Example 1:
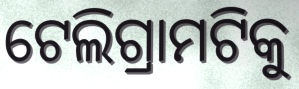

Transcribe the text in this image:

ଟେଲିଗ୍ରାମଟିକୁ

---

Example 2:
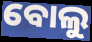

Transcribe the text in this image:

ବୋଲୁ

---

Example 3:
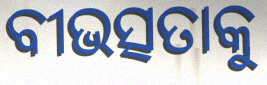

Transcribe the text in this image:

ବୀଭତ୍ସତାକୁ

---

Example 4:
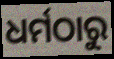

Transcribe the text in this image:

ଧର୍ମଠାରୁ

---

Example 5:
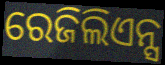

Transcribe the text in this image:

ରେଜିଲିଏନ୍ସ